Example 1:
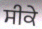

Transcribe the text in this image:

ਸੀਕੇ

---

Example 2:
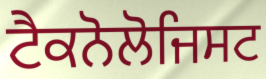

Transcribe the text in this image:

ਟੈਕਨੋਲੋਜਿਸਟ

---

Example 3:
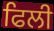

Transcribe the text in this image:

ਫਿਲੀ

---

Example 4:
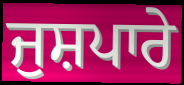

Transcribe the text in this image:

ਜੁਸ਼ਪਾਰੇ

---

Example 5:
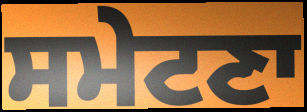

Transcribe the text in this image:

ਸਮੇਟਣਾ